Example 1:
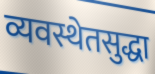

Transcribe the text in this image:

व्यवस्थेतसुद्धा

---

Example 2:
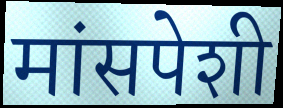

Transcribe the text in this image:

मांसपेशी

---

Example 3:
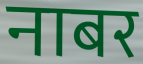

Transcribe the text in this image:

नाबर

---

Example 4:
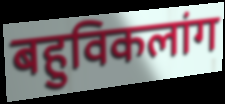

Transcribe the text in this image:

बहुविकलांग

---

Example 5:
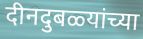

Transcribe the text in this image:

दीनदुबळ्यांच्या